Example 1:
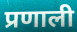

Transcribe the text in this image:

प्रणाली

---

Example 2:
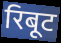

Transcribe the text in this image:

रिबूट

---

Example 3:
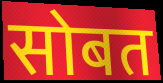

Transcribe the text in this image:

सोबत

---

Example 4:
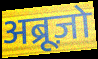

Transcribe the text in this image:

अब्रूज़ो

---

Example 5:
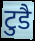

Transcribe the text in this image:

टुडै